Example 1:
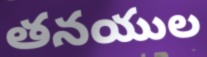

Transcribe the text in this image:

తనయుల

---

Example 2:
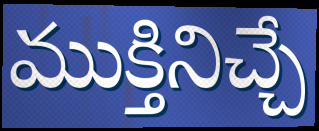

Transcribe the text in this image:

ముక్తినిచ్చే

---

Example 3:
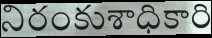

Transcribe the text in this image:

నిరంకుశాధికారి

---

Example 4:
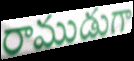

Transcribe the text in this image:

రాముడుగా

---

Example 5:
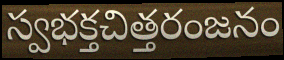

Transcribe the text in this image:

స్వభక్తచిత్తరంజనం